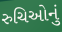
રુચિઓનું